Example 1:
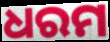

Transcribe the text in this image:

ଧରମ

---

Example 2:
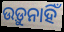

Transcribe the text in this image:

ଉଡ଼ୁନାହିଁ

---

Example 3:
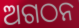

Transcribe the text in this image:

ଅଗଠନ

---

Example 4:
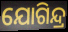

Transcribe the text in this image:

ଯୋଗିନ୍ଦ୍ର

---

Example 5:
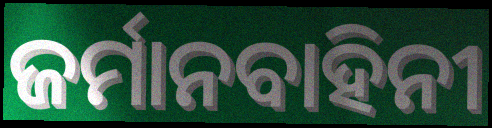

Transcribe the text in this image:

ଜର୍ମାନବାହିନୀ